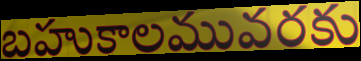
బహుకాలమువరకు